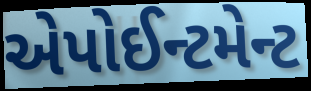
એપોઈન્ટમેન્ટ